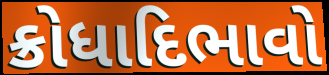
ક્રોધાદિભાવો